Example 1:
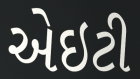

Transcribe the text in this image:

એઇટી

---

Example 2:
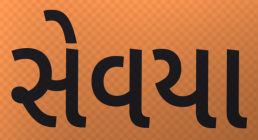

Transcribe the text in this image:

સેવયા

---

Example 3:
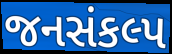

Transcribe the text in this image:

જનસંકલ્પ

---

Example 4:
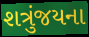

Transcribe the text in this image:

શત્રુંજયના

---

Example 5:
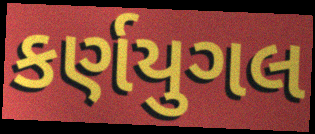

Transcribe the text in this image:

કર્ણયુગલ